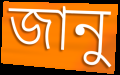
জানু